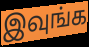
இவுங்க